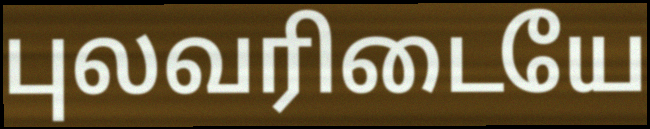
புலவரிடையே